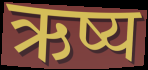
ऋष्य